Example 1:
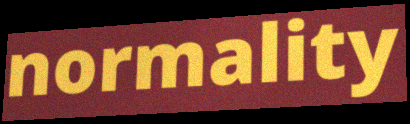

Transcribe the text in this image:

normality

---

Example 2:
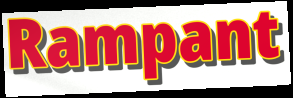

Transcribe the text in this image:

Rampant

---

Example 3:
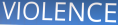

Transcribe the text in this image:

VIOLENCE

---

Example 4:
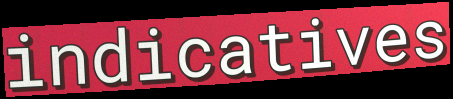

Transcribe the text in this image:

indicatives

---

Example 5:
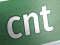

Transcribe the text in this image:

cnt